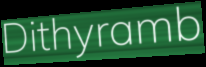
Dithyramb